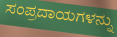
ಸಂಪ್ರದಾಯಗಳನ್ನು